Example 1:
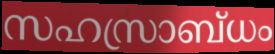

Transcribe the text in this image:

സഹസ്രാബ്ധം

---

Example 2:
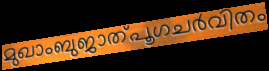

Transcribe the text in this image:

മുഖാംബുജാത്പൂഗചർവിതം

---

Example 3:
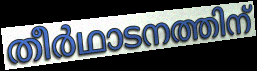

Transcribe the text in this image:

തീർഥാടനത്തിന്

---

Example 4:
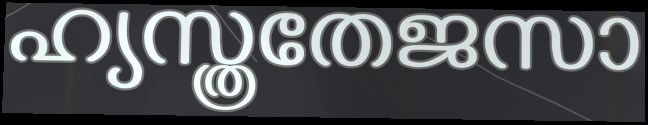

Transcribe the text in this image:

ഹ്യസ്ത്രതേജസാ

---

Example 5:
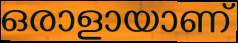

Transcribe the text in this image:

ഒരാളായാണ്